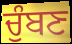
ਚੁੰਬਣ